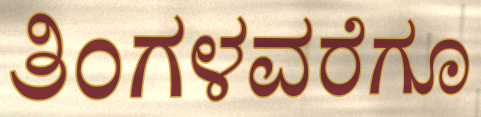
ತಿಂಗಳವರೆಗೂ